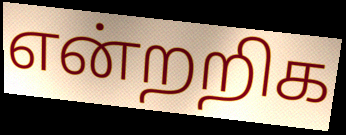
என்றறிக